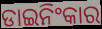
ଡାଇନିଂକାର